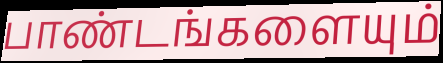
பாண்டங்களையும்